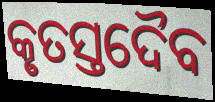
କୃତସ୍ତଦୈବ